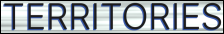
TERRITORIES